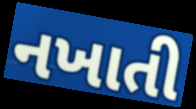
નખાતી